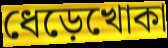
ধেড়েখোকা